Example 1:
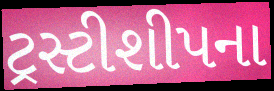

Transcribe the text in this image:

ટ્રસ્ટીશીપના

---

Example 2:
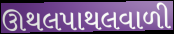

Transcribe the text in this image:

ઊથલપાથલવાળી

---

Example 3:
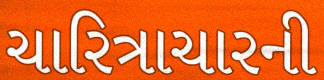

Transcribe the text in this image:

ચારિત્રાચારની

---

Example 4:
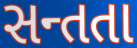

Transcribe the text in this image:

સન્તતા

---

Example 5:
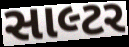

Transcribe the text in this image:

સાલ્ટર